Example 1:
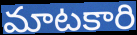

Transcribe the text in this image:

మాటకారి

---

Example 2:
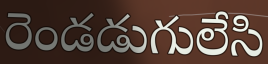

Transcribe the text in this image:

రెండడుగులేసి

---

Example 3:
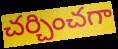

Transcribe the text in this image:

చర్చించగా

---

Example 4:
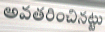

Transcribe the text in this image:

అవతరించినట్టు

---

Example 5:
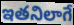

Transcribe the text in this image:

ఇతనిలాగే